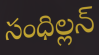
సంధిల్లన్